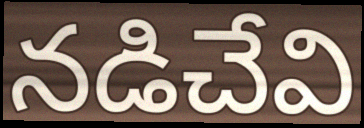
నడిచేవి